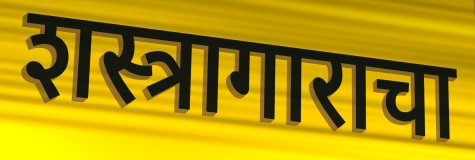
शस्त्रागाराचा